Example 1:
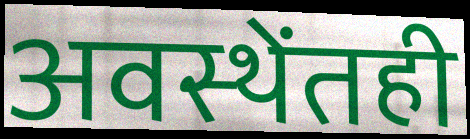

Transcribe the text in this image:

अवस्थेंतही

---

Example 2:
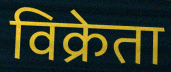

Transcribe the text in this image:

विक्रेता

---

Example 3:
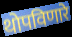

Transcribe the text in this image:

थोपविणारे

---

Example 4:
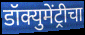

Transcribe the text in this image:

डॉक्युमेंट्रीचा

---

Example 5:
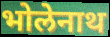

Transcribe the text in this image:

भोलेनाथ